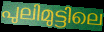
പുലിമുട്ടിലെ